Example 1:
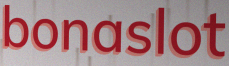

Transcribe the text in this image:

bonaslot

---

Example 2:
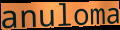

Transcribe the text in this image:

anuloma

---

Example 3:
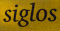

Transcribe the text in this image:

siglos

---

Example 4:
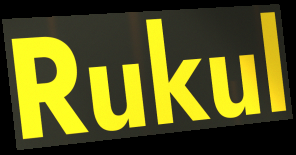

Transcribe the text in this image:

Rukul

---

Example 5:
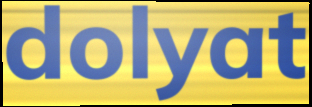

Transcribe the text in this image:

dolyat